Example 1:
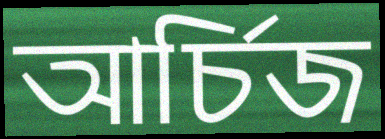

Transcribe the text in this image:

আর্চিজ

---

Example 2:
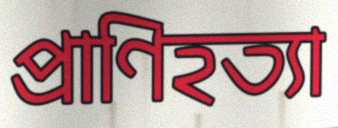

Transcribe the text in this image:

প্রাণিহত্যা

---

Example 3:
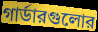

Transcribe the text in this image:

গার্ডারগুলোর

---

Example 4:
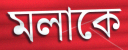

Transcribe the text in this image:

মলাকে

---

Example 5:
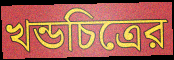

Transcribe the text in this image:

খন্ডচিত্রের